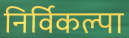
निर्विकल्पा